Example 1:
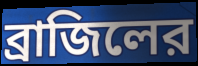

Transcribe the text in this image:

ব্রাজিলের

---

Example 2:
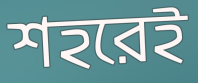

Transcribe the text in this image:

শহরেই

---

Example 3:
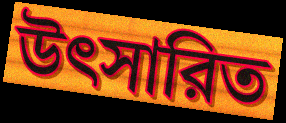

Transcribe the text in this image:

উৎসারিত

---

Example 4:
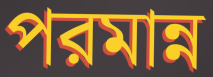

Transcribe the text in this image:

পরমান্ন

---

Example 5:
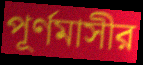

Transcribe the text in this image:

পূর্ণমাসীর